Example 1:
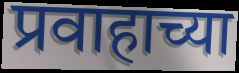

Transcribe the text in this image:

प्रवाहाच्या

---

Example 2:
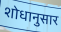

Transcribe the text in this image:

शोधानुसार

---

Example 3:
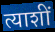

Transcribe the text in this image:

त्याशीं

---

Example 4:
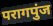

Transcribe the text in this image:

परागपुंज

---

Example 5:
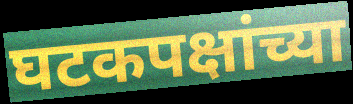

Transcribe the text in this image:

घटकपक्षांच्या